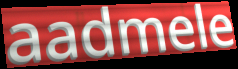
aadmele